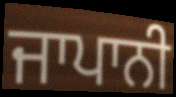
ਜਾਪਾਨੀ